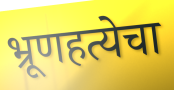
भ्रूणहत्येचा